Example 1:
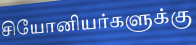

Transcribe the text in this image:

சியோனியர்களுக்கு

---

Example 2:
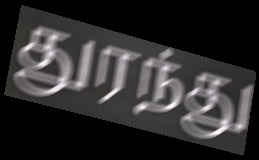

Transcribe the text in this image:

துரந்து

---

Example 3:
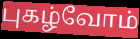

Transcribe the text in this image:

புகழ்வோம்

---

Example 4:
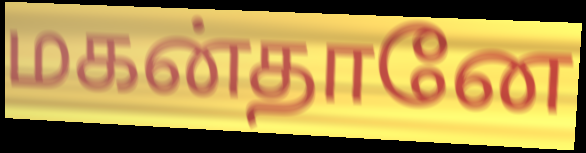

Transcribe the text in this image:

மகன்தானே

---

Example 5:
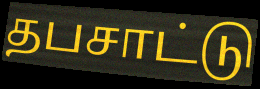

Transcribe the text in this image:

தபசாட்டு